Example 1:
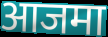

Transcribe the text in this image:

आजमा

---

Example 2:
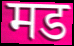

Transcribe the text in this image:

मड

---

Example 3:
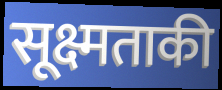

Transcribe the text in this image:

सूक्ष्मताकी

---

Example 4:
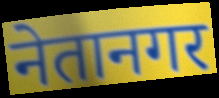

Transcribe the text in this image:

नेतानगर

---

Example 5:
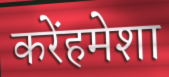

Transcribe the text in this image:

करेंहमेशा